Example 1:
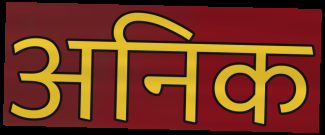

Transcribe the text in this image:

अनिक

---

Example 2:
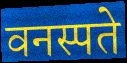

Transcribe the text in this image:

वनस्पते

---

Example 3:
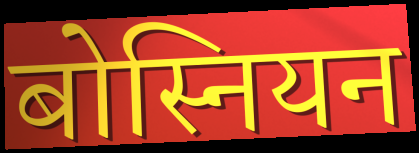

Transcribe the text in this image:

बोस्नियन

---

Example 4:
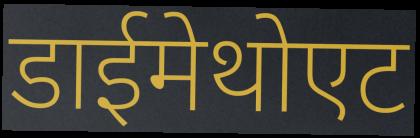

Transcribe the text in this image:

डाईमेथोएट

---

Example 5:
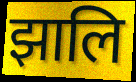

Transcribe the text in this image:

झालि